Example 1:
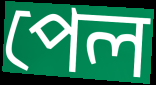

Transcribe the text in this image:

পেল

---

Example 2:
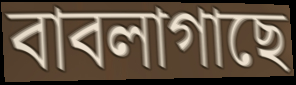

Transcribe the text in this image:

বাবলাগাছে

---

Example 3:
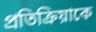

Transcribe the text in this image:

প্রতিক্রিয়াকে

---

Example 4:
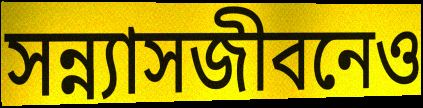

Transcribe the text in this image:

সন্ন্যাসজীবনেও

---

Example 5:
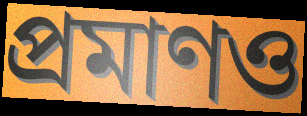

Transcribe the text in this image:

প্রমাণও